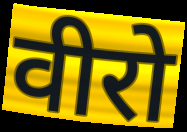
वीरो